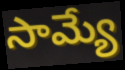
సామ్యే